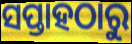
ସପ୍ତାହଠାରୁ